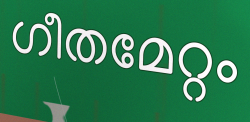
ഗീതമേറ്റം